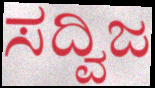
ಸದ್ವಿಜ